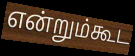
என்றும்கூட